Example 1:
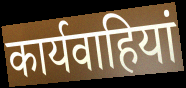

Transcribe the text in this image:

कार्यवाहियां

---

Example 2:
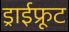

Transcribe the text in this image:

ड्राईफ्रूट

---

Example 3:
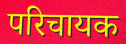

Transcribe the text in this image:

परिचायक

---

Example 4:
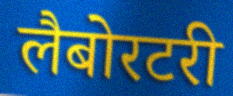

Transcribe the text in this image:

लैबोरटरी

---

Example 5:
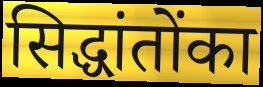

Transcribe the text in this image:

सिद्धांतोंका